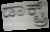
ಡಾಕ್ಟ್ರ್